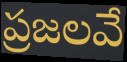
ప్రజలవే